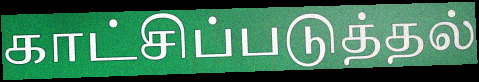
காட்சிப்படுத்தல்